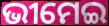
ଭୀମେଇ